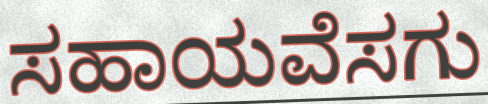
ಸಹಾಯವೆಸಗು